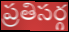
ప్రతిసర్గ